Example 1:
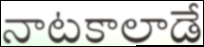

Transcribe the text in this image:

నాటకాలాడే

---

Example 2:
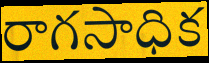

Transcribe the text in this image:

రాగసాధిక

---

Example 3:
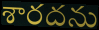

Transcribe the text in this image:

శారదను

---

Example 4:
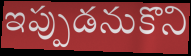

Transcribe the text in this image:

ఇప్పుడనుకొని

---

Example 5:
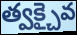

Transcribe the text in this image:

త్వక్చైవ